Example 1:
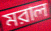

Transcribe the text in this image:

মরাল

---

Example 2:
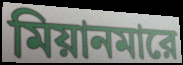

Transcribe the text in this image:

মিয়ানমারে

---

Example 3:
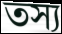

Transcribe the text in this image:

তস্য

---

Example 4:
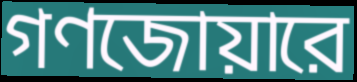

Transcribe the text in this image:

গণজোয়ারে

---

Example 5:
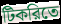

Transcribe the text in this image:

টিকরিতে